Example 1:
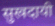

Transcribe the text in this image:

सुखदायी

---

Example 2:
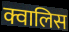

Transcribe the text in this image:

क्वालिस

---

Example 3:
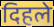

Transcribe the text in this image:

दिहले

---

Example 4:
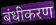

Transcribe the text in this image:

बंधीकरण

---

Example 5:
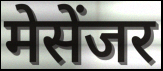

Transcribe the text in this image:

मेसेंजर